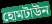
হোমটাউন